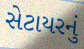
સેટાયરનું